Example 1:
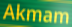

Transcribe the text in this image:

Akmam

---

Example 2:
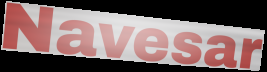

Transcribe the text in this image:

Navesar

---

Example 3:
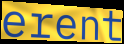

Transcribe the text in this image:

erent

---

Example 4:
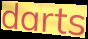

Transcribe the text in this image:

darts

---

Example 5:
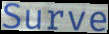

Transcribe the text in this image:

Surve